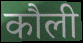
कौली